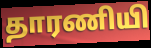
தாரணியி